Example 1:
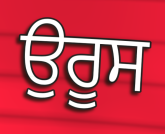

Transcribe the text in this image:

ਉਰੂਸ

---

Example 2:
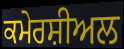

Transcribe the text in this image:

ਕਮੇਰਸ਼ੀਅਲ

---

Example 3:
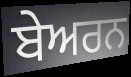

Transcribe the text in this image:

ਬੇਅਰਨ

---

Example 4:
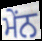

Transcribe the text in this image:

ਮੇਂਨ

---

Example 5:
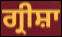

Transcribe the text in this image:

ਗ੍ਰੀਸ਼ਾ